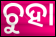
ଚୁହା